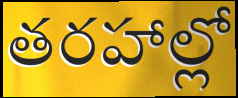
తరహాల్లో